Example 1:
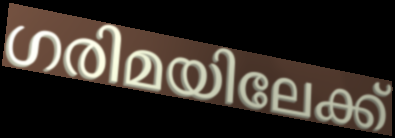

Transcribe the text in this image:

ഗരിമയിലേക്ക്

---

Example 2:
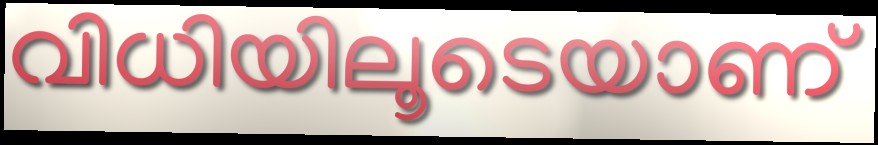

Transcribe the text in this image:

വിധിയിലൂടെയാണ്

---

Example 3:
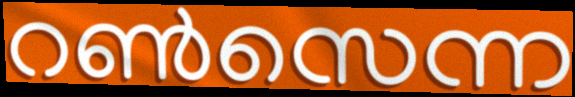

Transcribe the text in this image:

റൺസെന്ന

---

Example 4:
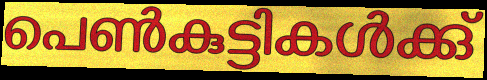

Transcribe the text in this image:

പെൺകുട്ടികൾക്കു്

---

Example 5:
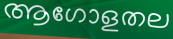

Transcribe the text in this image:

ആഗോളതല